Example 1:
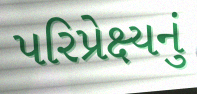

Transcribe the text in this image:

પરિપ્રેક્ષ્યનું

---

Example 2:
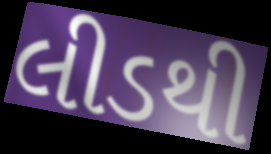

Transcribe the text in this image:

લીડથી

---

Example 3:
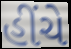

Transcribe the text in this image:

હીંચે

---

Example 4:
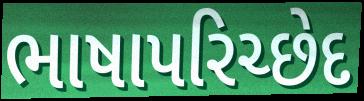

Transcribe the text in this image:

ભાષાપરિચ્છેદ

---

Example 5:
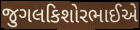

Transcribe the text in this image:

જુગલકિશોરભાઈએ